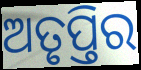
ଅତୃପ୍ତିର